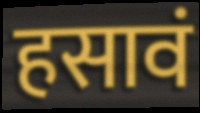
हसावं